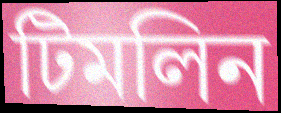
টিমলিন